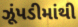
ઝૂંપડીમાંથી